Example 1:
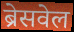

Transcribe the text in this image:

ब्रेसवेल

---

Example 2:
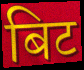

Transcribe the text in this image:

बिट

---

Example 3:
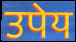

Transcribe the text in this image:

उपेय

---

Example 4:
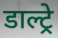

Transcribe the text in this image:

डाल्ट्रे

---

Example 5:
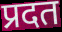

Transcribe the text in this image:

प्रदत